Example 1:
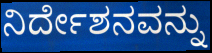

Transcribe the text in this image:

ನಿರ್ದೇಶನವನ್ನು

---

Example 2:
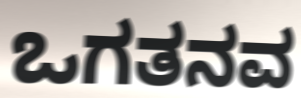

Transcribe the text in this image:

ಒಗತನವ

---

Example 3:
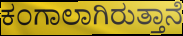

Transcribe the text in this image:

ಕಂಗಾಲಾಗಿರುತ್ತಾನೆ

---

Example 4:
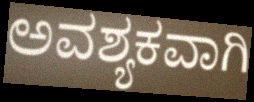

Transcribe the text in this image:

ಅವಶ್ಯಕವಾಗಿ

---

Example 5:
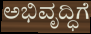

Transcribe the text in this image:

ಅಭಿವೃದ್ಧಿಗೆ